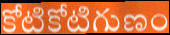
కోటికోటిగుణం